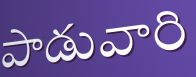
పాడువారి